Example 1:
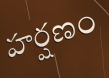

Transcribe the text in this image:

హర్షణం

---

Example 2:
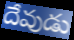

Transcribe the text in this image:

దేవుడు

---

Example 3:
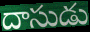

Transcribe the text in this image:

దాసుడు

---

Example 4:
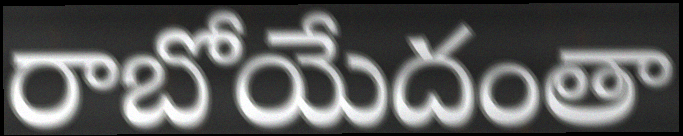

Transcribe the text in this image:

రాబోయేదంతా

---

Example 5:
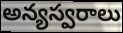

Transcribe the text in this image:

అన్యస్వరాలు